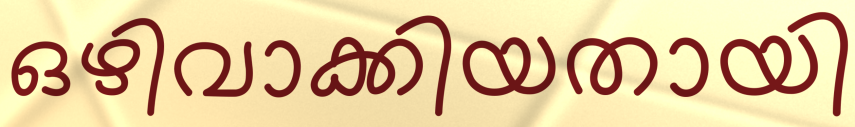
ഒഴിവാക്കിയതായി